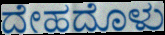
ದೇಹದೊಳು